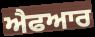
ਐਫਆਰ